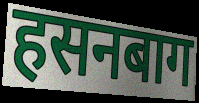
हसनबाग